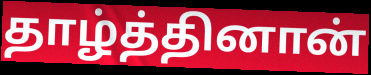
தாழ்த்தினான்